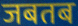
जबतब